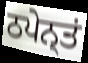
ਠਪੇਨ੍ਤਂ